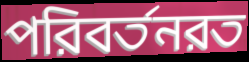
পরিবর্তনরত